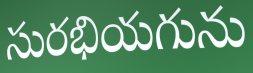
సురభియగును